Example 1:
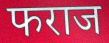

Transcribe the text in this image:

फराज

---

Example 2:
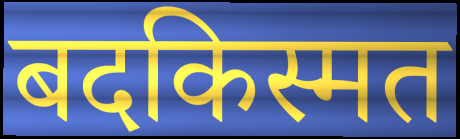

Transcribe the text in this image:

बदकिस्‍मत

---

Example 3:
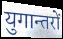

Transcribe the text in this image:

युगान्तरों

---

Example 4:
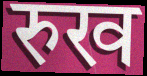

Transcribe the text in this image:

रुख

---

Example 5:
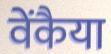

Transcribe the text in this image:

वेंकैया